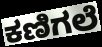
ಕಣಿಗಲೆ